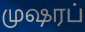
முஷரப்